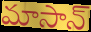
మాసాన్